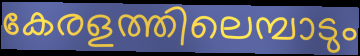
കേരളത്തിലെമ്പാടും